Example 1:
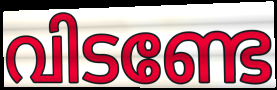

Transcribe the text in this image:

വിടണ്ടേ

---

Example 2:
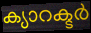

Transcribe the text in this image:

ക്യാറക്ടർ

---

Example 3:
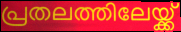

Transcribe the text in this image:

പ്രതലത്തിലേയ്ക്ക്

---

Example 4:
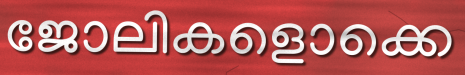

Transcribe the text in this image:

ജോലികളൊക്കെ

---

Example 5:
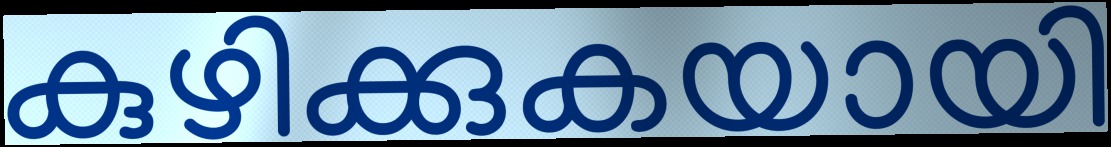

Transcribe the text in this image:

കുഴിക്കുകയായി